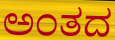
ಅಂತದ